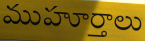
ముహూర్తాలు